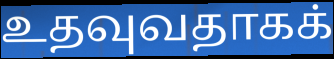
உதவுவதாகக்